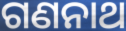
ଗଣନାଥ